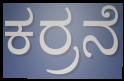
ಕರ್ರನೆ